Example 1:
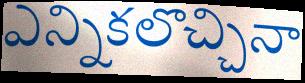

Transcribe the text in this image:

ఎన్నికలొచ్చినా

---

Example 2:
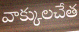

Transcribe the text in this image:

వాక్కులచేత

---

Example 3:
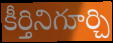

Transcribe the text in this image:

కీర్తినిగూర్చి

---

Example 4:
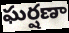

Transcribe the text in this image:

ఘర్షణా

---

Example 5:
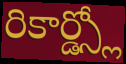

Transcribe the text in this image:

రికార్డ్స్లో